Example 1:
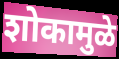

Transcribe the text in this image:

शोकामुळे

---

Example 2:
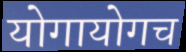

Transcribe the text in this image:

योगायोगच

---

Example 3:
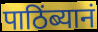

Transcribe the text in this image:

पाठिंब्यानं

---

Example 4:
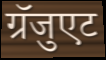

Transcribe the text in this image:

ग्रॅजुएट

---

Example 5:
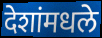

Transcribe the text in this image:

देशांमधले